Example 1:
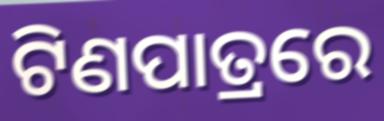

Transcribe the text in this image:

ଟିଣପାତ୍ରରେ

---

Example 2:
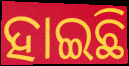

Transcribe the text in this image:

ହାଇଛି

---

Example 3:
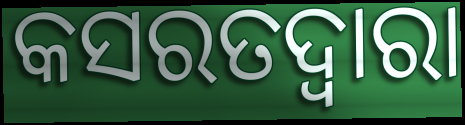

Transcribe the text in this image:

କସରତଦ୍ୱାରା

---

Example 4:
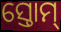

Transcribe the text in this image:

ସ୍ତୋମ୍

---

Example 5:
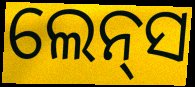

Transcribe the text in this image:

ଲେନ୍‍ସ